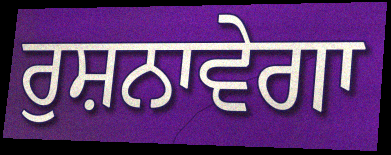
ਰੁਸ਼ਨਾਵੇਗਾ